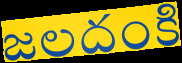
జలదంకి